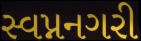
સ્વપ્નનગરી